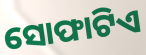
ସୋଫାଟିଏ